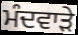
ਮੰਦਵਾੜੇ